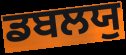
ਡਬਲਯੁ